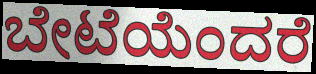
ಬೇಟೆಯೆಂದರೆ